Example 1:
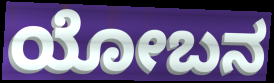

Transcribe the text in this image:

ಯೋಬನ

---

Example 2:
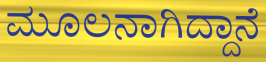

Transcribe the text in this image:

ಮೂಲನಾಗಿದ್ದಾನೆ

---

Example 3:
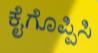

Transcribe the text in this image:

ಕೈಗೊಪ್ಪಿಸಿ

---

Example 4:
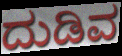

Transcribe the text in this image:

ದುಡಿವ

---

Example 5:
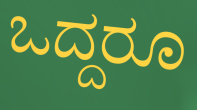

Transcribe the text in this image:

ಒದ್ದರೂ